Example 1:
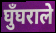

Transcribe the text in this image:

घुँघराले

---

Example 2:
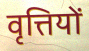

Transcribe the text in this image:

वृत्तियों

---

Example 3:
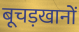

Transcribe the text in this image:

बूचड़खानों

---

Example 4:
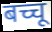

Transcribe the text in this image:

बच्चू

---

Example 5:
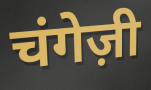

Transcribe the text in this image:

चंगेज़ी